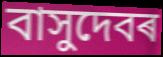
বাসুদেবৰ